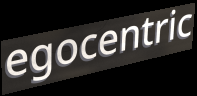
egocentric